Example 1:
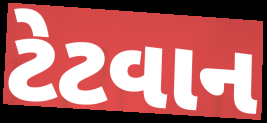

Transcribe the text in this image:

ટેટવાન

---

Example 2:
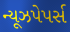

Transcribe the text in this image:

ન્યૂઝપેપર્સ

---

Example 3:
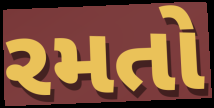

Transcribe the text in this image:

રમતો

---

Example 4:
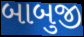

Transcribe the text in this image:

બાબુજી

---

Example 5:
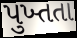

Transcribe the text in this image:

પુખ્તતા